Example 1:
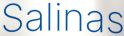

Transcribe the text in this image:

Salinas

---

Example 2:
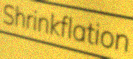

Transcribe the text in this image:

Shrinkflation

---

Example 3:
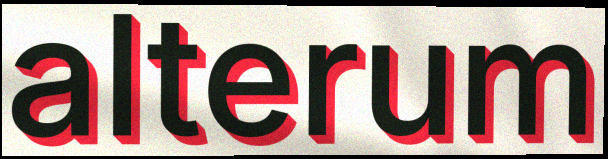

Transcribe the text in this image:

alterum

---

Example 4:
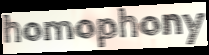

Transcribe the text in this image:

homophony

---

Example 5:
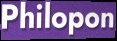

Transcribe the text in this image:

Philopon